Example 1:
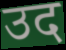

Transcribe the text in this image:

उद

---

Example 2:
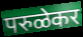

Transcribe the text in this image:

परुळेकर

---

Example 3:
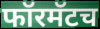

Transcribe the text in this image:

फॉरमॅटच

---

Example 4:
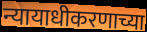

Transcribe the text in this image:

न्यायाधीकरणाच्या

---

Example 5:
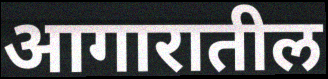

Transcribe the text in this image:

आगारातील